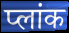
प्लांक